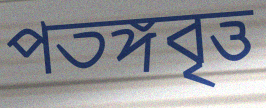
পতঙ্গবৃত্ত